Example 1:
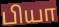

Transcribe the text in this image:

பியா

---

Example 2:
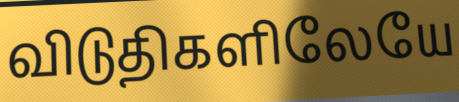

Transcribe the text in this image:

விடுதிகளிலேயே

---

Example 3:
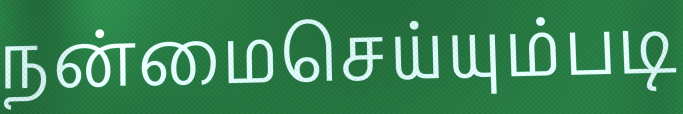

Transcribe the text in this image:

நன்மைசெய்யும்படி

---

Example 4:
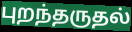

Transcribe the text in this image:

புறந்தருதல்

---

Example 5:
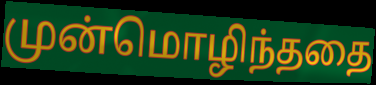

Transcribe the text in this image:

முன்மொழிந்ததை